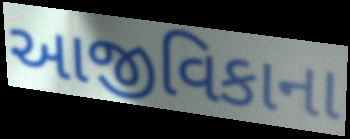
આજીવિકાના